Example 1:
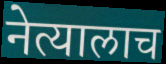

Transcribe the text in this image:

नेत्यालाच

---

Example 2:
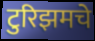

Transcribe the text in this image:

टुरिझमचे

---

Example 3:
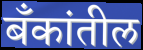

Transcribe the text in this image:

बॅंकांतील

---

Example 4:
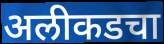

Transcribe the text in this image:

अलीकडचा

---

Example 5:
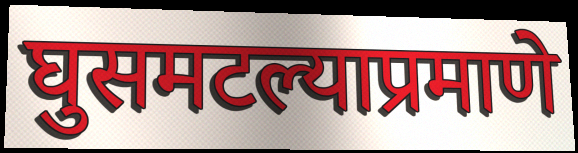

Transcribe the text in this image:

घुसमटल्याप्रमाणे